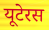
यूटेरस